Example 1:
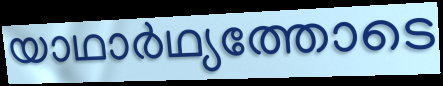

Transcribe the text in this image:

യാഥാർഥ്യത്തോടെ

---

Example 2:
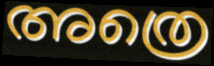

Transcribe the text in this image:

അത്രെ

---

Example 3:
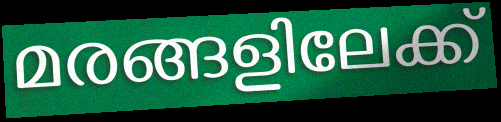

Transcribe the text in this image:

മരങ്ങളിലേക്ക്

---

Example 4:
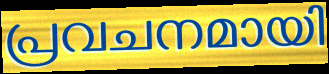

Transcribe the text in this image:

പ്രവചനമായി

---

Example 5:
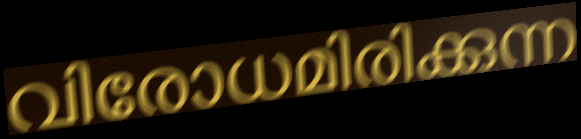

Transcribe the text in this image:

വിരോധമിരിക്കുന്ന